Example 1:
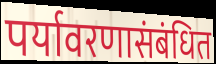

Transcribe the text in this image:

पर्यावरणासंबंधित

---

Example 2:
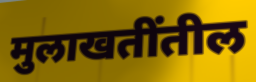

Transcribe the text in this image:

मुलाखतींतील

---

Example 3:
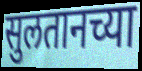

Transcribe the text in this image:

सुलतानच्या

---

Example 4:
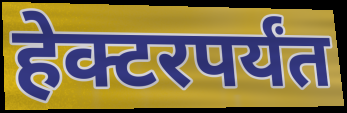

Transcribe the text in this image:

हेक्टरपर्यंत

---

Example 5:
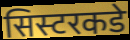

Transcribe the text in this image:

सिस्टरकडे